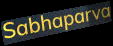
Sabhaparva